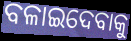
ବଳାଇଦେବାକୁ